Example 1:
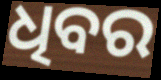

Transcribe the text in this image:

ଧିବର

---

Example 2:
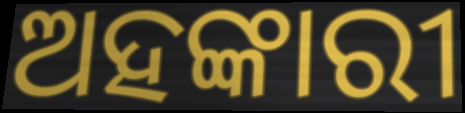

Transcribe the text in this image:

ଅହଙ୍କାରୀ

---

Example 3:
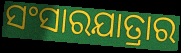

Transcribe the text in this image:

ସଂସାରଯାତ୍ରାର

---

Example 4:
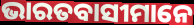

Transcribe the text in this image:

ଭାରତବାସୀମାନେ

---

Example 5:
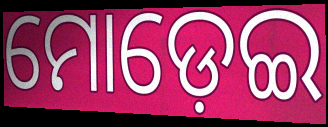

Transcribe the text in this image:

ମୋଡ଼େଇ